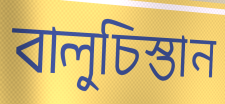
বালুচিস্তান